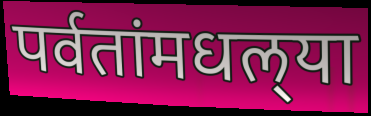
पर्वतांमधल्या